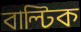
বাল্টিক